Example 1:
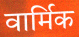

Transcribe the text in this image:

वार्मिक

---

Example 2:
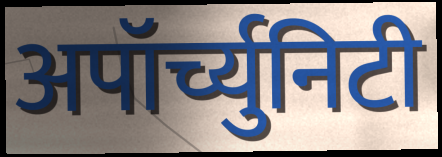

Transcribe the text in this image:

अपॉर्च्युनिटी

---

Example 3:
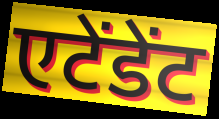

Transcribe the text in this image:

एटेंडेंट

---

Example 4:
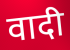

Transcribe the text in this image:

वादी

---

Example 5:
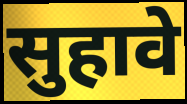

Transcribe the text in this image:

सुहावे